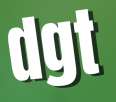
dgt